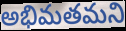
అభిమతమని